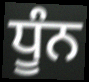
ਧੂੰਨ